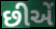
છીએં